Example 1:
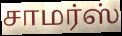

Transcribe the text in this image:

சாமர்ஸ்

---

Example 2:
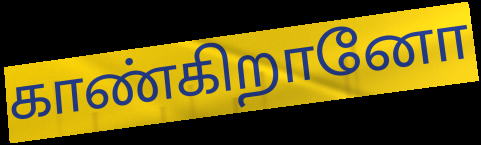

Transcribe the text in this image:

காண்கிறானோ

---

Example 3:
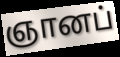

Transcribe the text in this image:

ஞானப்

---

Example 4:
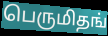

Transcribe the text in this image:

பெருமிதங்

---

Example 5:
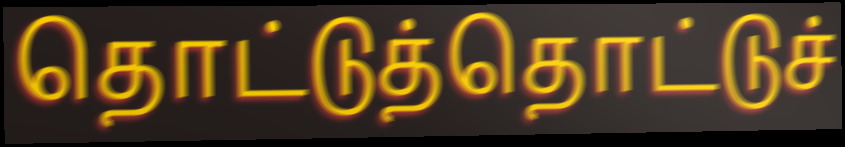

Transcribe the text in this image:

தொட்டுத்தொட்டுச்